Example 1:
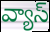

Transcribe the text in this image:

వ్యాస్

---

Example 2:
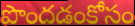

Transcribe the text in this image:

పొందడంకోసం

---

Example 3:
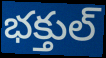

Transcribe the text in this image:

భక్తుల్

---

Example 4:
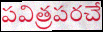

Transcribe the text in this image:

పవిత్రపరచే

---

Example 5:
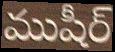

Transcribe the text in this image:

ముషీర్